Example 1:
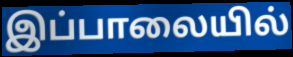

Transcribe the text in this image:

இப்பாலையில்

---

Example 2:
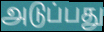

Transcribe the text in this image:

அடுப்பது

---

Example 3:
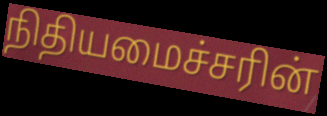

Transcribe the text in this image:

நிதியமைச்சரின்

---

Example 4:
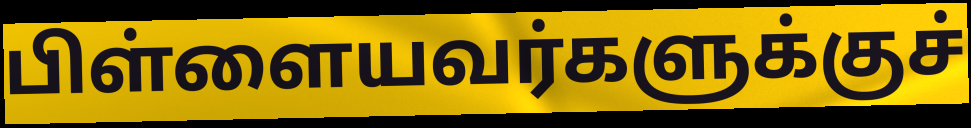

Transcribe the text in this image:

பிள்ளையவர்களுக்குச்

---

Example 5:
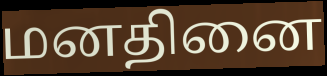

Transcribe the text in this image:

மனதினை